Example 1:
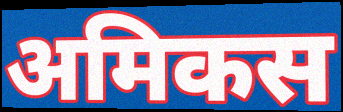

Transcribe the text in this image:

अमिकस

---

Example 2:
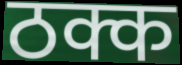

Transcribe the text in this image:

ठक्क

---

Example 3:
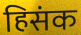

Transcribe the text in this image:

हिसंक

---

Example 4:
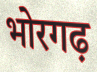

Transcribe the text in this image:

भोरगढ़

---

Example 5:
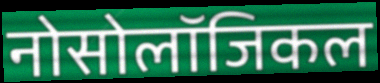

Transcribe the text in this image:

नोसोलॉजिकल